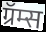
ग्रॅम्स